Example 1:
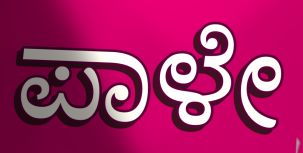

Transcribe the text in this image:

ಪಾಳೇ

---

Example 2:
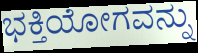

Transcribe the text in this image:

ಭಕ್ತಿಯೋಗವನ್ನು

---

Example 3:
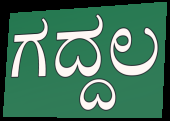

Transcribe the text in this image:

ಗದ್ದಲ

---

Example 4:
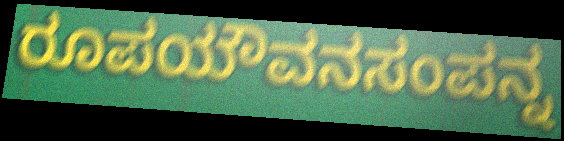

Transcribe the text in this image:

ರೂಪಯೌವನಸಂಪನ್ನ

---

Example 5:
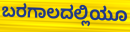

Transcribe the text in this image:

ಬರಗಾಲದಲ್ಲಿಯೂ